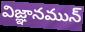
విజ్ఞానమున్